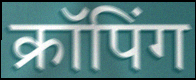
क्रॉपिंग